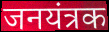
जनयंत्रक